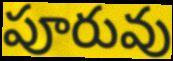
పూరువు